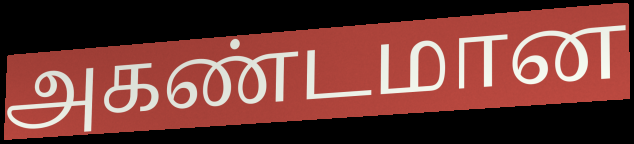
அகண்டமான